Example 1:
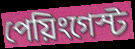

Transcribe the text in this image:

পেয়িংগেস্ট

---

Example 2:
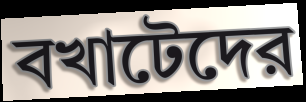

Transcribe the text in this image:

বখাটেদের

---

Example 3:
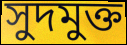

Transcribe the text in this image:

সুদমুক্ত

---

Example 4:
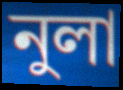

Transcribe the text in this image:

নুলা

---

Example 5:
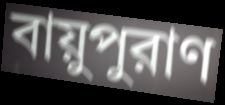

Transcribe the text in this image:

বায়ুপুরাণ